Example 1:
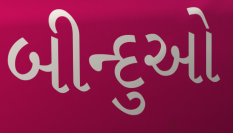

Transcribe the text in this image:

બીન્દુઓ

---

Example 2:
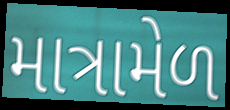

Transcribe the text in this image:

માત્રામેળ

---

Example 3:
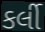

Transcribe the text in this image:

કર્લી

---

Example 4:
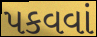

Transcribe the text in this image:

પકવવાં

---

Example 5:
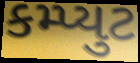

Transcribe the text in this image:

કમ્પ્યુટ